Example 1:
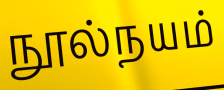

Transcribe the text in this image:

நூல்நயம்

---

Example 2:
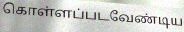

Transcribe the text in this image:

கொள்ளப்படவேண்டிய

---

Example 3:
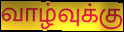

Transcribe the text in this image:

வாழ்வுக்கு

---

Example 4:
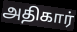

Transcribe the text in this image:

அதிகார்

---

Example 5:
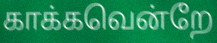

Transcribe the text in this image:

காக்கவென்றே